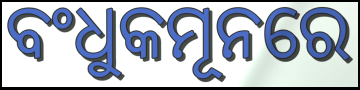
ବଂଧୁକମୂନରେ